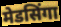
मेडसिंगा